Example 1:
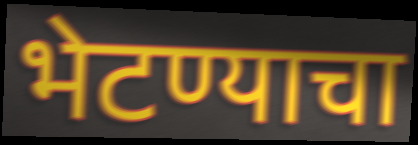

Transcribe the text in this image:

भेटण्याचा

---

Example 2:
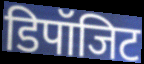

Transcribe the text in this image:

डिपॉजिट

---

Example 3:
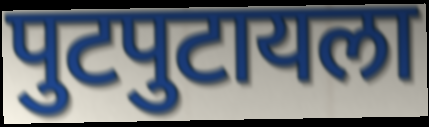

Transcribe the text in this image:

पुटपुटायला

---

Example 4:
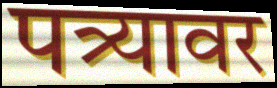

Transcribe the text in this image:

पत्र्यावर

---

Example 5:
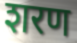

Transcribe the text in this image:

शरण